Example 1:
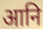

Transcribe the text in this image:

आनि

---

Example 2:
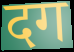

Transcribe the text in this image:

दग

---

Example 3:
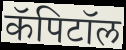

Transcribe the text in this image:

कॅपिटॉल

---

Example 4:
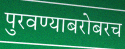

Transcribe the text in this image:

पुरवण्याबरोबरच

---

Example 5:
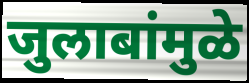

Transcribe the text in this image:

जुलाबांमुळे